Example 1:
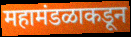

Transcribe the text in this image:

महामंडळाकडून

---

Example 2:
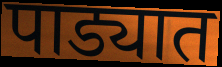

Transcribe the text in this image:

पाड्यात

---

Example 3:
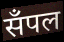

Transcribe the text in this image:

सँपल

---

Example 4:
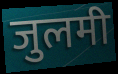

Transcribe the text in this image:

जुलमी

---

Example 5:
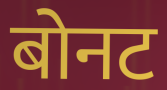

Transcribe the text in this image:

बोनट